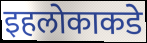
इहलोकाकडे